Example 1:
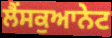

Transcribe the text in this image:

ਲੈਂਸਕੁਆਨੇਟ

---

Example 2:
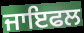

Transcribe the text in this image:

ਜਾਇਫਲ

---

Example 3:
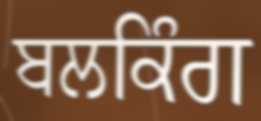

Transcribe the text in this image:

ਬਲਕਿੰਗ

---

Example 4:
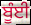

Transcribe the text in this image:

ਬੂੰਈ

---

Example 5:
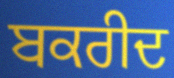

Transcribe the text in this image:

ਬਕਰੀਦ